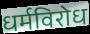
धर्मविरोध